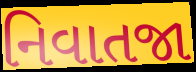
નિવાતજા